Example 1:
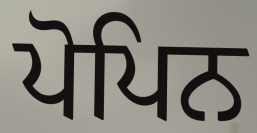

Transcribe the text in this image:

ਪੋਪਿਨ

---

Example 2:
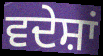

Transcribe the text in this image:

ਵਦੇਸ਼ਾਂ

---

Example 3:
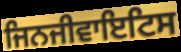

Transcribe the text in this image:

ਜਿਨਜੀਵਾਇਟਿਸ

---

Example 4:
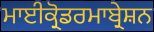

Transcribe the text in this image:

ਮਾਈਕ੍ਰੋਡਰਮਾਬ੍ਰੇਸ਼ਨ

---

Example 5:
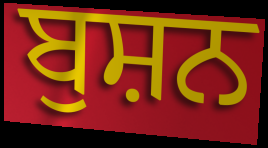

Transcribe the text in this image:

ਬੁਸ਼ਨ